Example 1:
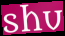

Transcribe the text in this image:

shu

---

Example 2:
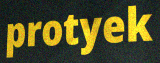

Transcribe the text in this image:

protyek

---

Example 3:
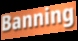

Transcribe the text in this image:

Banning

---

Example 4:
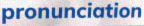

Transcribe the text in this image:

pronunciation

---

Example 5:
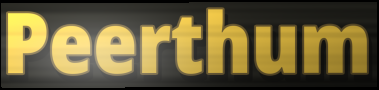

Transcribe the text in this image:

Peerthum